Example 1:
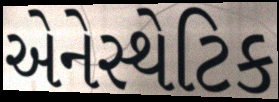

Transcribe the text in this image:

એનેસ્થેટિક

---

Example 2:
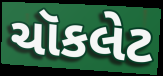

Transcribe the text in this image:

ચૉકલેટ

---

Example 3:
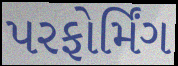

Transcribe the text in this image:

પરફોર્મિંગ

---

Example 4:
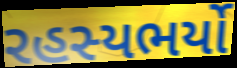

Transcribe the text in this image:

રહસ્યભર્યો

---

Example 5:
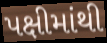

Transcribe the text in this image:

પક્ષીમાંથી